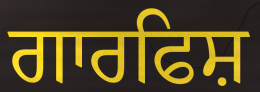
ਗਾਰਫਿਸ਼